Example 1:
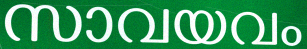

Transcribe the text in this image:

സാവയവം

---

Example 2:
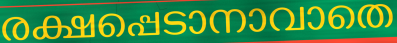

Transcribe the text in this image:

രക്ഷപ്പെടാനാവാതെ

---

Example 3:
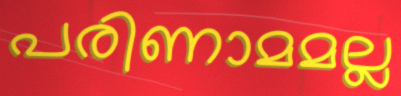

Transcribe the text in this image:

പരിണാമമല്ല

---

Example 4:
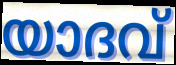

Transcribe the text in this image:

യാദവ്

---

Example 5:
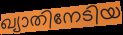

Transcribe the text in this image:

ഖ്യാതിനേടിയ